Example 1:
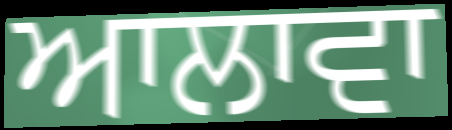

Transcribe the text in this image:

ਆਲਾਵਾ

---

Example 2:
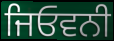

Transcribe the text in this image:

ਜਿਓਵਨੀ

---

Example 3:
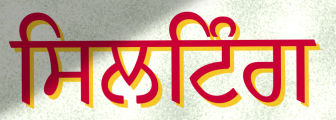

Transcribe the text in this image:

ਸਿਲਟਿੰਗ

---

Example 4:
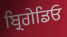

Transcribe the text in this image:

ਬ੍ਰਿਗੇਡਿਓ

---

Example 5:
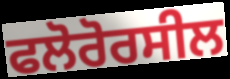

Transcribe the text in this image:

ਫਲੋਰੋਰਸੀਲ